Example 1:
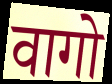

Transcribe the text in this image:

वागो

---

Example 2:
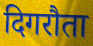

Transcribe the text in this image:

दिगरौता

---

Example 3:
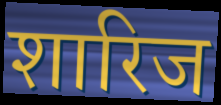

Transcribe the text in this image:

शारिज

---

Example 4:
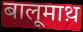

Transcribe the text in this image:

बालूमाथ़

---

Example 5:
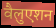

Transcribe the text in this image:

वैलुएशन